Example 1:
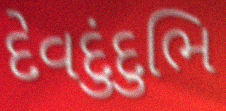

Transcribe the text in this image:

દેવદુંદુભિ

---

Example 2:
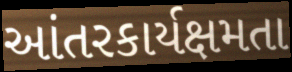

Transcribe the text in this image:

આંતરકાર્યક્ષમતા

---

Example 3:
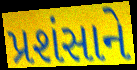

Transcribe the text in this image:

પ્રશંસાને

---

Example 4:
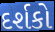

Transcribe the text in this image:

દર્શકો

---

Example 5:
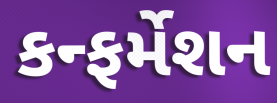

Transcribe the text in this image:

કન્ફર્મેશન